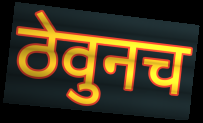
ठेवुनच